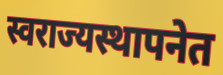
स्वराज्यस्थापनेत